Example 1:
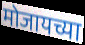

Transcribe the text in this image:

मोजायच्या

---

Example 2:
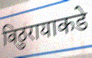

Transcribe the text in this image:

विठुरायाकडे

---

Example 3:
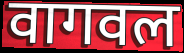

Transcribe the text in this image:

वागवल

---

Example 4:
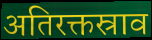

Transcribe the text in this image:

अतिरक्तस्राव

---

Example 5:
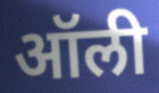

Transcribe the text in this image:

ऑली